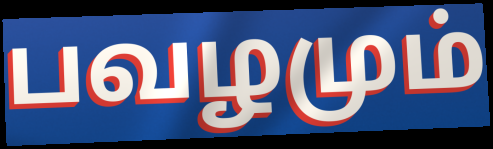
பவழமும்